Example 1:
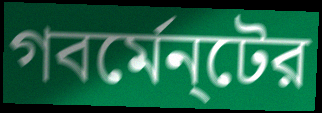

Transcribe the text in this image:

গবর্মেন্‌টের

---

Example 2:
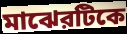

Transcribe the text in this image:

মাঝেরটিকে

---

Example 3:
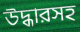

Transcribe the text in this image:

উদ্ধারসহ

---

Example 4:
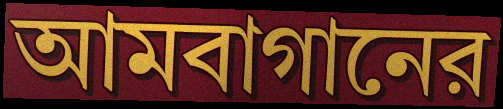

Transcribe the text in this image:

আমবাগানের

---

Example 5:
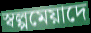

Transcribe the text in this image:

স্বল্পমেয়াদে